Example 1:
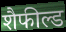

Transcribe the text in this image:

शैफील्ड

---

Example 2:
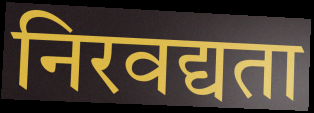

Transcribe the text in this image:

निरवद्यता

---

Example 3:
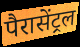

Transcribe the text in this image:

पैरासेंट्रल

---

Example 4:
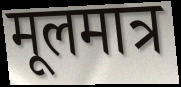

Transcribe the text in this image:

मूलमात्र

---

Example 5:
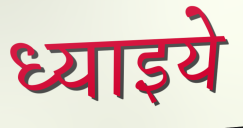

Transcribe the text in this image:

ध्याइये